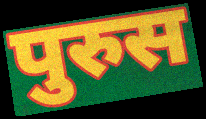
पुरुस